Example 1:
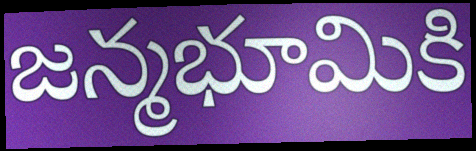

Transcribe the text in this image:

జన్మభూమికి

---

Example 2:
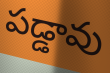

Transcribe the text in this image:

పడ్డావు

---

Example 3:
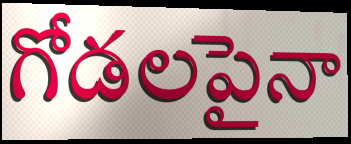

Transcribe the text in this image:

గోడలపైనా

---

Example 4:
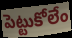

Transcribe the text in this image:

పెట్టుకోలేం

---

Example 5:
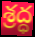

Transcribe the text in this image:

శ్రద్ధ